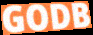
GODB